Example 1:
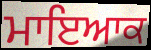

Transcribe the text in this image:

ਮਾਇਆਕ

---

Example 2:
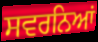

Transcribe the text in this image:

ਸਵਰਨਿਆਂ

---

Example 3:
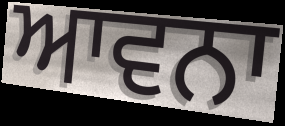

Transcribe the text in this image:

ਆਵਨਾ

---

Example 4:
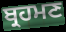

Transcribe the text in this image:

ਬ੍ਰਹਮਣ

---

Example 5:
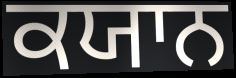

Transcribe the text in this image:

ਕਯਾਨ